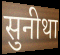
सुनीथा